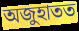
অজুহাতত